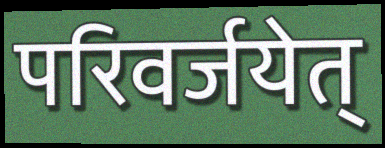
परिवर्जयेत्